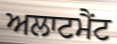
ਅਲਾਟਮੈਂਟ